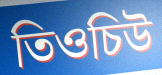
তিওচিউ